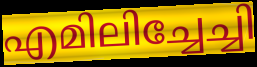
എമിലിച്ചേച്ചി